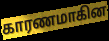
காரணமாகின